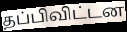
தப்பிவிட்டன